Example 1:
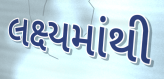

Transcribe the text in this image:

લક્ષ્યમાંથી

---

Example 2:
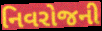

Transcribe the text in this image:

નિવરોજની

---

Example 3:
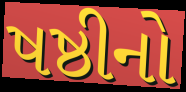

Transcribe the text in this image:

ષષ્ઠીનો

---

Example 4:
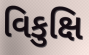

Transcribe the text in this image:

વિકુક્ષિ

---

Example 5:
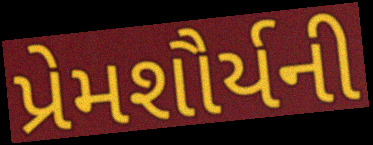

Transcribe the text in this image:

પ્રેમશૌર્યની